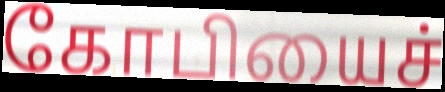
கோபியைச்